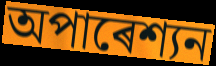
অপাৰেশ্যন